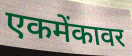
एकमेंकावर